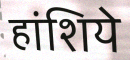
हांशिये